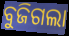
ବୁଜିଗଲା